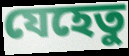
যেহেতু